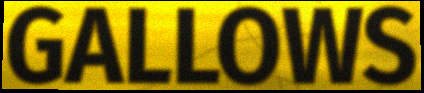
GALLOWS